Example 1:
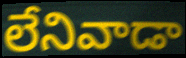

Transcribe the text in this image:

లేనివాడా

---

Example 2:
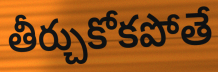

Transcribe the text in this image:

తీర్చుకోకపోతే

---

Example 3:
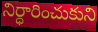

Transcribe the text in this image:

నిర్ధారించుకుని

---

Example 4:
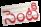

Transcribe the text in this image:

సెంటీ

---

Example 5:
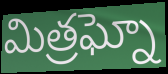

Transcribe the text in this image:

మిత్రఘ్నో